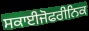
ਸਕਾਈਜੋਫਰੀਨਿਕ